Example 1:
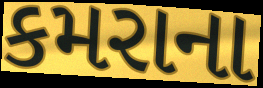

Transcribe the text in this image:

કમરાના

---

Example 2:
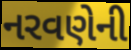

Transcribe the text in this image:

નરવણેની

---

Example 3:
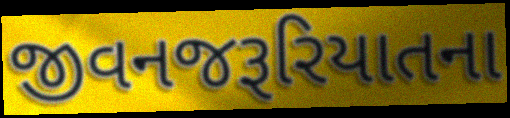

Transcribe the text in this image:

જીવનજરૂરિયાતના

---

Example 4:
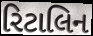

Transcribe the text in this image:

રિટાલિન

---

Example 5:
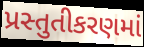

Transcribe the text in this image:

પ્રસ્તુતીકરણમાં